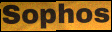
Sophos